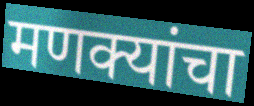
मणक्यांचा